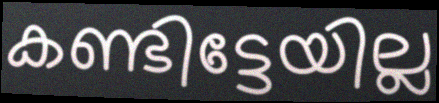
കണ്ടിട്ടേയില്ല